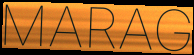
MARAG